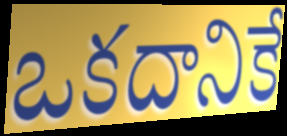
ఒకదానికే